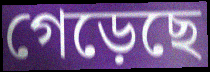
গেড়েছে